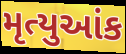
મૃત્યુઆંક